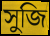
সুজি